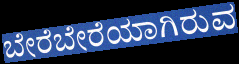
ಬೇರೆಬೇರೆಯಾಗಿರುವ